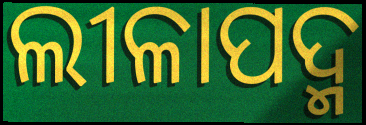
ଲୀଳାପଦ୍ମ